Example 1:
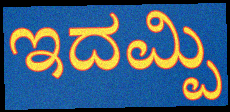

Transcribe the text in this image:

ಇದಮ್ಪಿ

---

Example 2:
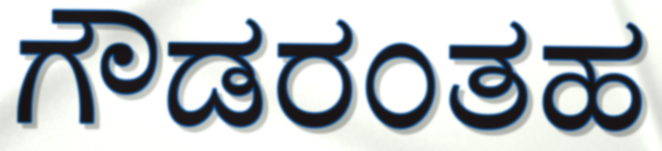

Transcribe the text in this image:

ಗೌಡರಂತಹ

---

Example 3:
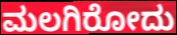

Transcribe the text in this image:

ಮಲಗಿರೋದು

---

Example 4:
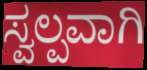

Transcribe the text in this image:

ಸ್ವಲ್ಪವಾಗಿ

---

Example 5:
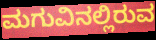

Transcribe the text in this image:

ಮಗುವಿನಲ್ಲಿರುವ